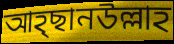
আহ্ছানউল্লাহ